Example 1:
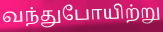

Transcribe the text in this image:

வந்துபோயிற்று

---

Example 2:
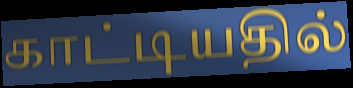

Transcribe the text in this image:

காட்டியதில்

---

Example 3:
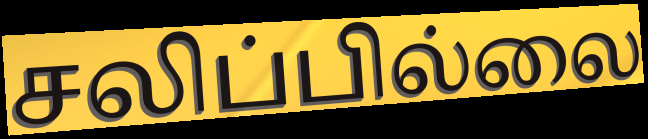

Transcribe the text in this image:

சலிப்பில்லை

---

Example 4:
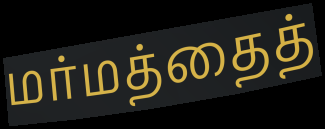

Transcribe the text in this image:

மர்மத்தைத்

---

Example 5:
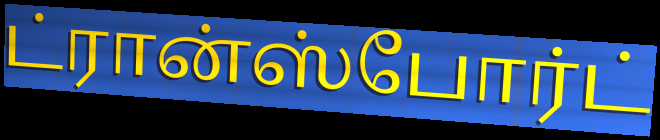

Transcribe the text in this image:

ட்ரான்ஸ்போர்ட்